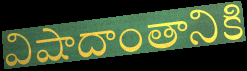
విషాదాంతానికి